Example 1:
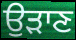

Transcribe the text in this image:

ਉਡ਼ਾਣ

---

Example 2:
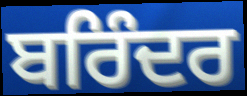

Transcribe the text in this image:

ਬਰਿੰਦਰ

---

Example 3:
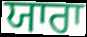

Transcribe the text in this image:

ਯਾਰਾ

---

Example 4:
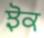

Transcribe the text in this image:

ਝੋਕ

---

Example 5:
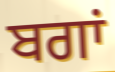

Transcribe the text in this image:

ਬਗਾਂ